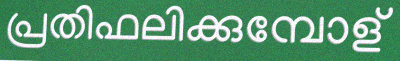
പ്രതിഫലിക്കുമ്പോള്